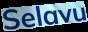
Selavu